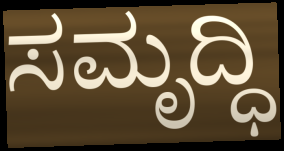
ಸಮೃದ್ಧಿ